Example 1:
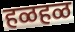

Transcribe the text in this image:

हळहळ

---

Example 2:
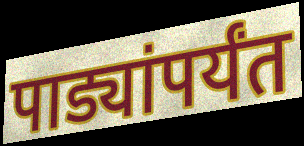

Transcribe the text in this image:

पाड्यांपर्यंत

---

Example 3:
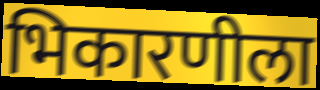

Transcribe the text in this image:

भिकारणीला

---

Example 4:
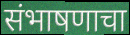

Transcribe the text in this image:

संभाषणाचा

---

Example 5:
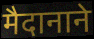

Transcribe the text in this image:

मैदानाने